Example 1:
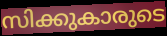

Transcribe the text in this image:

സിക്കുകാരുടെ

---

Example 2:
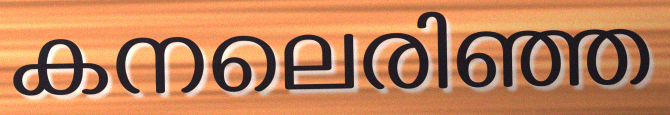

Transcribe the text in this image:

കനലെരിഞ്ഞ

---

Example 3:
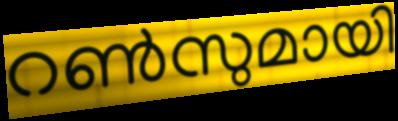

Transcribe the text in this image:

റൺസുമായി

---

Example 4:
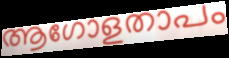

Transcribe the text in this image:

ആഗോളതാപം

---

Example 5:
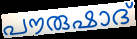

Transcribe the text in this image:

പൗരുഷാദ്